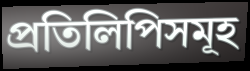
প্ৰতিলিপিসমূহ